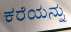
ಕರೆಯನ್ನು